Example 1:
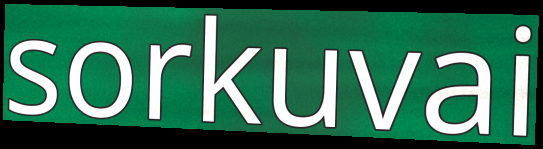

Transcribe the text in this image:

sorkuvai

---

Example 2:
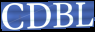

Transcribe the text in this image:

CDBL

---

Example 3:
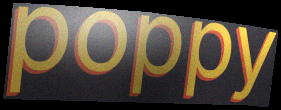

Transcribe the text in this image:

poppy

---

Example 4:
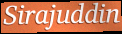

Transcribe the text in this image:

Sirajuddin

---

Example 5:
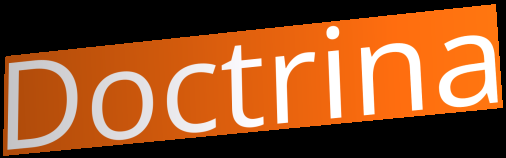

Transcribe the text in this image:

Doctrina